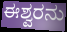
ಈಶ್ವರನು